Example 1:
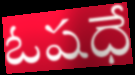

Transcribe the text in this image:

ఓషధే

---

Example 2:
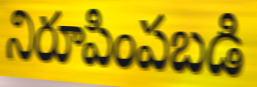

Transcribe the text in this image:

నిరూపింపబడి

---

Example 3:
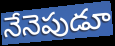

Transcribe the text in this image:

నేనెపుడూ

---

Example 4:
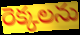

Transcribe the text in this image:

రెక్కలను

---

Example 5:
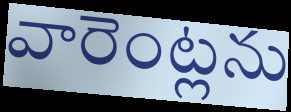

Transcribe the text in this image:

వారెంట్లను